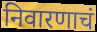
निवारणाचं